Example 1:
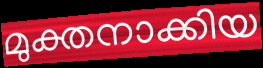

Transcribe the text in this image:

മുക്തനാക്കിയ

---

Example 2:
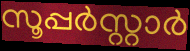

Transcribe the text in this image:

സൂപ്പർസ്റ്റാർ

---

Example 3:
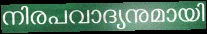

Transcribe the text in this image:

നിരപവാദ്യനുമായി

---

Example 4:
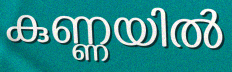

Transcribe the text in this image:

കുണ്ണയിൽ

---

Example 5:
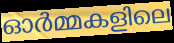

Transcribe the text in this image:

ഓർമ്മകളിലെ